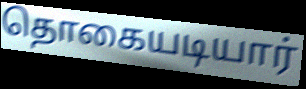
தொகையடியார்